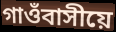
গাওঁবাসীয়ে